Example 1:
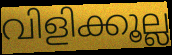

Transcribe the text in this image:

വിളിക്കൂല്ല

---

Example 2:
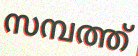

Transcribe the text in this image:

സമ്പത്ത്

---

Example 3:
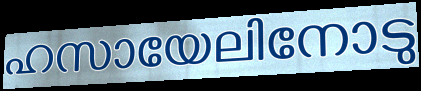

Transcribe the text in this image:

ഹസായേലിനോടു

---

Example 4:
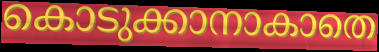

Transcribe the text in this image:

കൊടുക്കാനാകാതെ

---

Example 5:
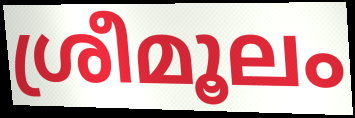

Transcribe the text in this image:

ശ്രീമൂലം